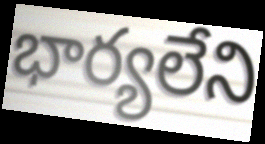
భార్యలేని